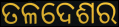
ତଳଦେଶର